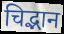
चिद्भान